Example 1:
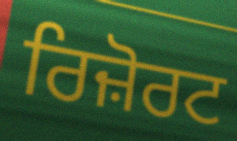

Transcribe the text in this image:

ਰਿਜ਼ੋਰਟ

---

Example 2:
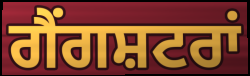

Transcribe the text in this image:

ਗੈਂਗਸ਼ਟਰਾਂ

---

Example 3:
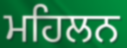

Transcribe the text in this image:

ਮਹਿਲਨ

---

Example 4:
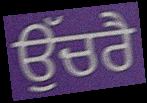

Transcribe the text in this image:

ਉੱਚਰੈ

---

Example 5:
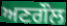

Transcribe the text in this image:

ਅਣਗੌਲ